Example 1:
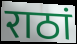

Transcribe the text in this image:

राठां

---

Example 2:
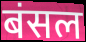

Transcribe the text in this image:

बंसल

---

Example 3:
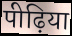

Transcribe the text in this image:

पीढ़िया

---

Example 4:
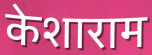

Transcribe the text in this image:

केशाराम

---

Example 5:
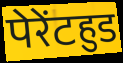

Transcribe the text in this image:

पेरेंटहुड